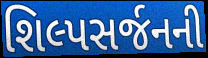
શિલ્પસર્જનની